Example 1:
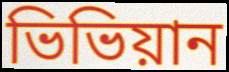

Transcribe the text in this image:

ভিভিয়ান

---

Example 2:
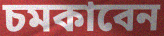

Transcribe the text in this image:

চমকাবেন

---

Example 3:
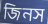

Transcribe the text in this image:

জিনস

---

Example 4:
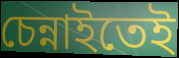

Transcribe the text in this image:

চেন্নাইতেই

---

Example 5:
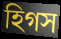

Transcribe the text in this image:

হিগস